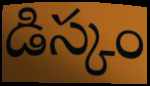
డిస్కం